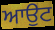
ਆਉਟ